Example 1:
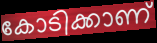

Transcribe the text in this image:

കോടിക്കാണ്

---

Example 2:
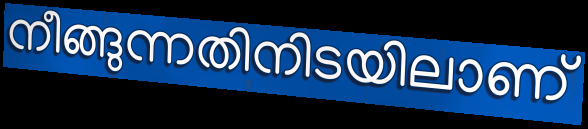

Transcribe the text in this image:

നീങ്ങുന്നതിനിടയിലാണ്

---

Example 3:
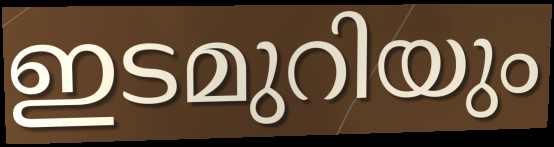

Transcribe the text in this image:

ഇടമുറിയും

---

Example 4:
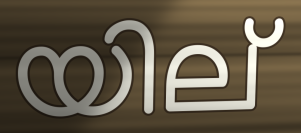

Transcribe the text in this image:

യില്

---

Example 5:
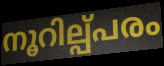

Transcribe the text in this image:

നൂറില്പ്പരം